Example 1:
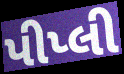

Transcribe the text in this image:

પીપ્લી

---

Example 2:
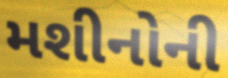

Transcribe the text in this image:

મશીનોની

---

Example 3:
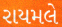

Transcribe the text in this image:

રાયમલે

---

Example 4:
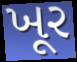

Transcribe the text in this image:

ખૂર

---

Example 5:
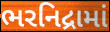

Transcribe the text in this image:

ભરનિદ્રામાં